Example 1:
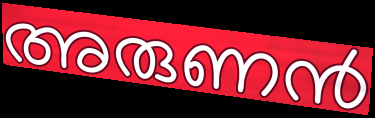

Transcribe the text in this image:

അരുണൻ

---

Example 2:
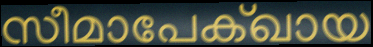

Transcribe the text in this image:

സീമാപേക്ഖായ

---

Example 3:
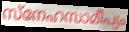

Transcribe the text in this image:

സ്നേഹസാമീപ്യം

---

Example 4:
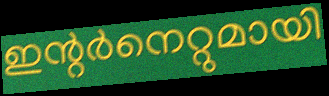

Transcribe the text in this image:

ഇന്റർനെറ്റുമായി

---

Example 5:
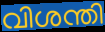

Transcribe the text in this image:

വിശന്തി